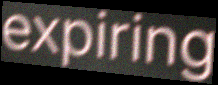
expiring